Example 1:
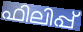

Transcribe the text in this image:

ഫിലിപ്പ്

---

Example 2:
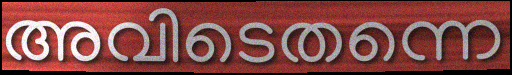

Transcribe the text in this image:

അവിടെതന്നെ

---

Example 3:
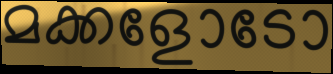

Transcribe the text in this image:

മക്കളോടോ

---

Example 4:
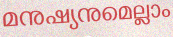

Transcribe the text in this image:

മനുഷ്യനുമെല്ലാം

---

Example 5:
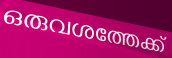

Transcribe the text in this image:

ഒരുവശത്തേക്ക്